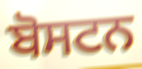
ਬੋਸਟਨ